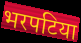
भरपटिया